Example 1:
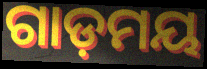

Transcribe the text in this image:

ଗାଡ଼ମୟ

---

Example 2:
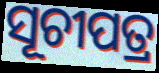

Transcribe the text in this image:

ସୂଚୀପତ୍ର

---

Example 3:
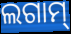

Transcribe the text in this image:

ଲଗାମ୍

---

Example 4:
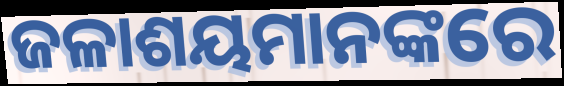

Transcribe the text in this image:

ଜଳାଶୟମାନଙ୍କରେ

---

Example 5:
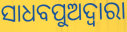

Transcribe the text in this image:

ସାଧବପୁଅଦ୍ୱାରା